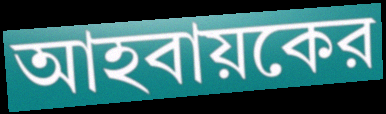
আহবায়কের